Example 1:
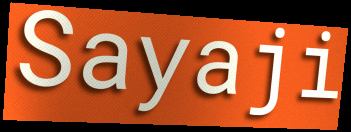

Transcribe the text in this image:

Sayaji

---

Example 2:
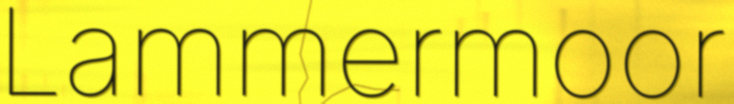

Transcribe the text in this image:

Lammermoor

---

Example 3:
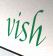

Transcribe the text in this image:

vish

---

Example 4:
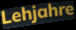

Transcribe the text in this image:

Lehjahre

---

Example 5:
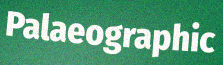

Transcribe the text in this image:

Palaeographic